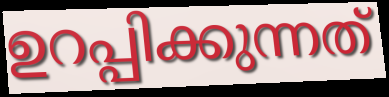
ഉറപ്പിക്കുന്നത്